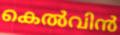
കെൽവിൻ